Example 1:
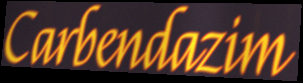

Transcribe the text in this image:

Carbendazim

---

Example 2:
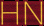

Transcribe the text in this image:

HN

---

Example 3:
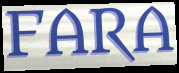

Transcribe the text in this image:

FARA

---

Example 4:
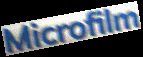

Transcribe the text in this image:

Microfilm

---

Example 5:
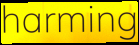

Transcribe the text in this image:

harming